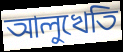
আলুখেতি